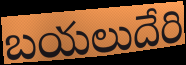
బయలుదేరి